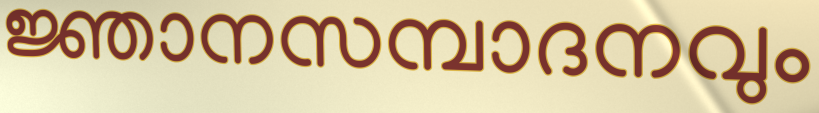
ജ്ഞാനസമ്പാദനവും